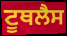
ਟੂਥਲੈਸ